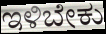
ಇಳಿಬೇಕು